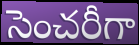
సెంచరీగా